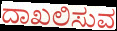
ದಾಖಲಿಸುವ